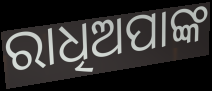
ରାଧିଅପାଙ୍କ